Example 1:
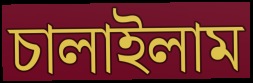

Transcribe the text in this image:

চালাইলাম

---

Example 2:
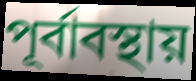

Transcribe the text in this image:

পূর্বাবস্থায়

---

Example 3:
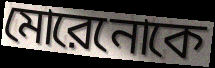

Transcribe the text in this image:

মোরেনোকে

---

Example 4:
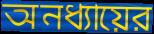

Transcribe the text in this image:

অনধ্যায়ের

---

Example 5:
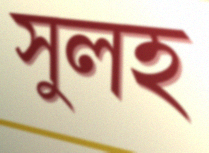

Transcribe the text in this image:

সুলহ